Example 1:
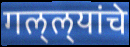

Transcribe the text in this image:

गल्ल्यांचे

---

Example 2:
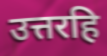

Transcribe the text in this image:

उत्तरहि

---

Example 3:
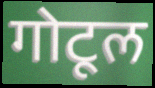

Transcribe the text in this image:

गोटूल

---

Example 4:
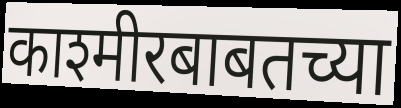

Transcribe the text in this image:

काश्मीरबाबतच्या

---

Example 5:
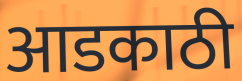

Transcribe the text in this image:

आडकाठी